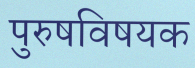
पुरुषविषयक